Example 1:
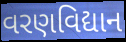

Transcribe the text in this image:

વરણવિદ્યાન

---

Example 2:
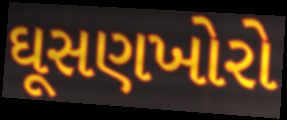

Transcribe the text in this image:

ઘૂસણખોરો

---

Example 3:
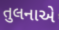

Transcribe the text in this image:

તુલનાએ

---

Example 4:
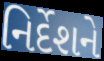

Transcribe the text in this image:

નિર્દેશને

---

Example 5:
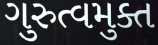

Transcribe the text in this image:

ગુરુત્વમુક્ત